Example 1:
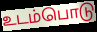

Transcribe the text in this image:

உடம்பொடு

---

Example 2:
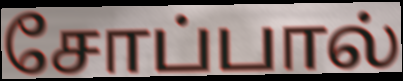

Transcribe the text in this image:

சோப்பால்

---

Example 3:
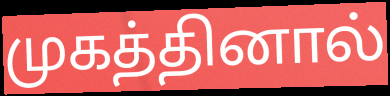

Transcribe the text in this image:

முகத்தினால்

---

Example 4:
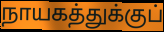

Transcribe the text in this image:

நாயகத்துக்குப்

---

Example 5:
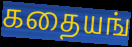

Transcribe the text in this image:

கதையங்